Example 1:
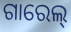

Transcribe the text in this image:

ଗାରେଲ୍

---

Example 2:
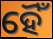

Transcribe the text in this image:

ହୈଁ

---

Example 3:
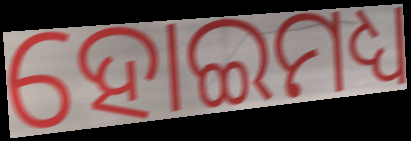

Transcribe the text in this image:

ହୋଇମଧ୍ୟ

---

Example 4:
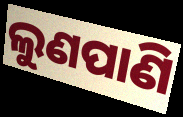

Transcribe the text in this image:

ଲୁଣପାଣି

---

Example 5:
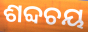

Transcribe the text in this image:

ଶବ୍ଦଚୟ